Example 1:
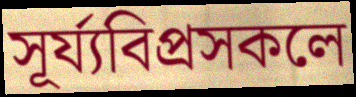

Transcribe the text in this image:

সূৰ্য্যবিপ্ৰসকলে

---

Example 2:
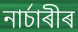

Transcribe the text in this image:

নাৰ্চাৰীৰ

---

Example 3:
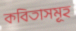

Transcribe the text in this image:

কবিতাসমূহ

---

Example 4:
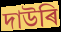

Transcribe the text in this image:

দাউৰি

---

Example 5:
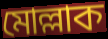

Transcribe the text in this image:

মোল্লাক